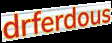
drferdous